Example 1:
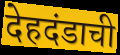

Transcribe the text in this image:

देहदंडाची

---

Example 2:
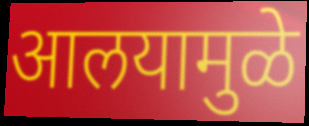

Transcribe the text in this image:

आलयामुळे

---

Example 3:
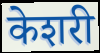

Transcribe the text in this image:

केशरी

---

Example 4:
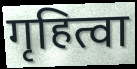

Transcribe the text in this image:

गृहित्वा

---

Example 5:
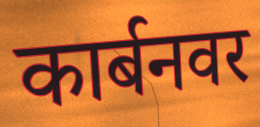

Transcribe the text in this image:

कार्बनवर